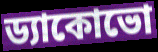
ড্যাকোভো